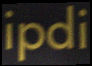
ipdi